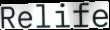
Relife